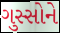
ગુસ્સોને